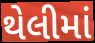
થેલીમાં